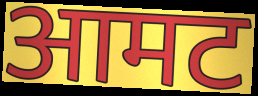
आमट